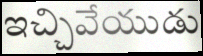
ఇచ్చివేయుడు